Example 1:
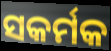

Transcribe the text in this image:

ସକର୍ମକ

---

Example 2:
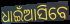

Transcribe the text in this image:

ଧାଇଁଆସିବେ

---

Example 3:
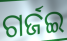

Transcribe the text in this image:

ଗର୍ଜଇ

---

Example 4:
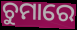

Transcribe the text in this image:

ଚୁମାରେ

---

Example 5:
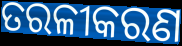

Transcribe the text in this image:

ତରଳୀକରଣ